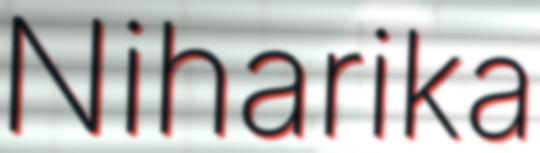
Niharika